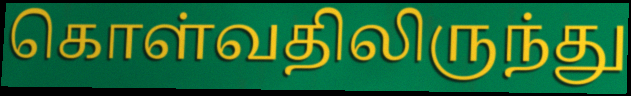
கொள்வதிலிருந்து